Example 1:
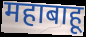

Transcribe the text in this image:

महाबाहू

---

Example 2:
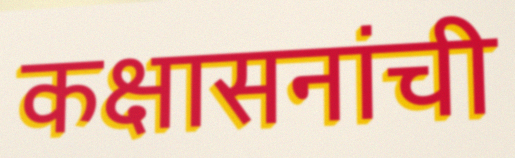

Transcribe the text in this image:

कक्षासनांची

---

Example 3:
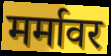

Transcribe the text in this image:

मर्मावर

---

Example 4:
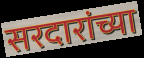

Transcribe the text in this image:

सरदारांच्या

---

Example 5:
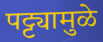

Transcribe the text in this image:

पट्ट्यामुळे